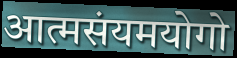
आत्मसंयमयोगो